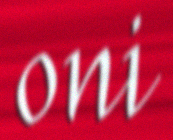
oni